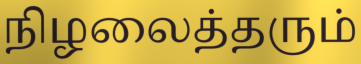
நிழலைத்தரும்